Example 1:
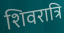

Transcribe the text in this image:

शिवरात्रि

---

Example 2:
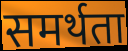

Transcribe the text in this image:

समर्थता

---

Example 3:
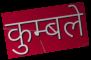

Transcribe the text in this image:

कुम्बले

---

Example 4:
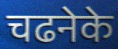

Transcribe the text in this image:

चढनेके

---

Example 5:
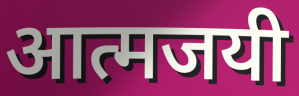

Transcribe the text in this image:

आत्मजयी